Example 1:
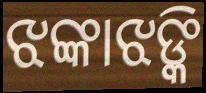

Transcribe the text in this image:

ଝଙ୍କାଝଙ୍କି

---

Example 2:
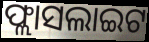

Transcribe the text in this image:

ଫ୍ଲାସଲାଇଟ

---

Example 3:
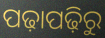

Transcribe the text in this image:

ପଢ଼ାପଢ଼ିରୁ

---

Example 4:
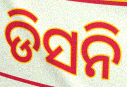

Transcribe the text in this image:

ଡିସନି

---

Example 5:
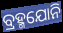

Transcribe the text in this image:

ବ୍ରହ୍ମଯୋନି